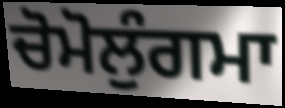
ਚੋਮੋਲੁੰਗਮਾ